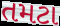
તમટા